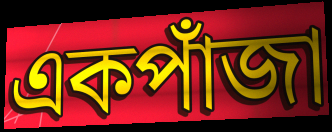
একপাঁজা